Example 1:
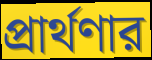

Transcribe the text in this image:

প্রার্থণার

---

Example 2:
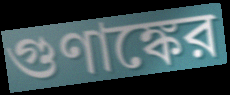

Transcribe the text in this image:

গুণাঙ্কের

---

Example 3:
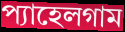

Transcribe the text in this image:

প্যাহেলগাম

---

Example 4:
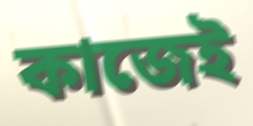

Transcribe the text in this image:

কাজেই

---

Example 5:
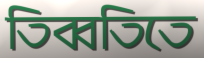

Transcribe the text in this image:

তিব্বতিতে